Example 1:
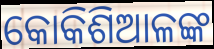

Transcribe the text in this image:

କୋକିଶିଆଳଙ୍କ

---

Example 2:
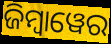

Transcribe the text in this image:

ଜିମ୍ୱାୱେର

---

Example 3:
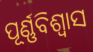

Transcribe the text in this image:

ପୂର୍ଣ୍ଣବିଶ୍ଵାସ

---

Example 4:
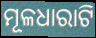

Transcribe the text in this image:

ମୂଳଧାରାଟି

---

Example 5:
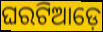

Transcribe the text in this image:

ଘରଟିଆଡ଼େ